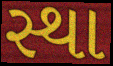
સ્થા